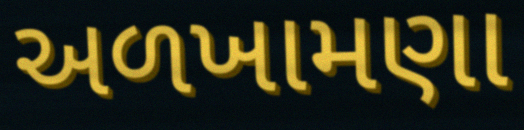
અળખામણા